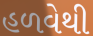
હળવેથી